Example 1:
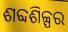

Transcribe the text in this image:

ଶବ୍ଦଶିଳ୍ପର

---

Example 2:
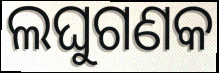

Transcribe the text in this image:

ଲଘୁଗଣକ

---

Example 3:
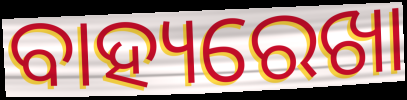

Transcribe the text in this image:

ବାହ୍ୟରେଖା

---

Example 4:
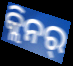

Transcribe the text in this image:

କ୍ଲିନର୍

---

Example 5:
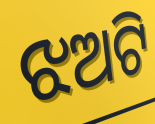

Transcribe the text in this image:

ଝଅଟି